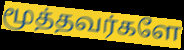
மூத்தவர்களே